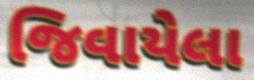
જિવાયેલા